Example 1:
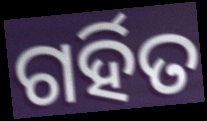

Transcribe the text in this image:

ଗର୍ହିତ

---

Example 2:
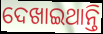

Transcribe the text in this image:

ଦେଖାଇଥାନ୍ତି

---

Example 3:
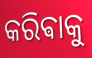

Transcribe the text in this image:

କରିଵାକୁ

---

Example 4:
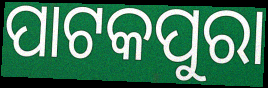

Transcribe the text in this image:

ପାଟକପୁରା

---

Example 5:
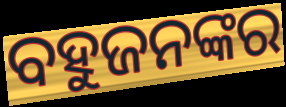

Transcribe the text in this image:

ବହୁଜନଙ୍କର